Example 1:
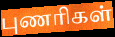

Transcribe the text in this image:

புணரிகள்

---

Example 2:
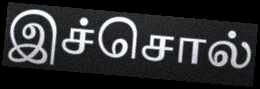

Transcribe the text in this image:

இச்சொல்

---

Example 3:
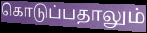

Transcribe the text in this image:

கொடுப்பதாலும்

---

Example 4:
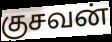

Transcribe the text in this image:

குசவன்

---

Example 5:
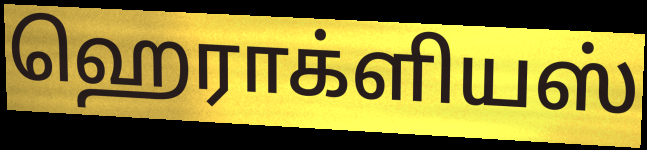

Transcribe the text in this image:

ஹெராக்ளியஸ்